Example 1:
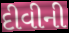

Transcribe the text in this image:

દીવીની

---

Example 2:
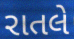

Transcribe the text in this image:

રાતલે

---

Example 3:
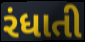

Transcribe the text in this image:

રંધાતી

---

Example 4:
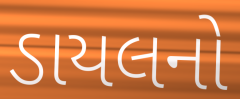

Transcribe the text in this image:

ડાયલનો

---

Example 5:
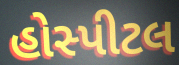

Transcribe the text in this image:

હોસ્પીટલ